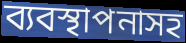
ব্যবস্থাপনাসহ